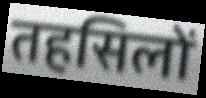
तहसिलों